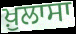
ਖ਼ੁਲਾਸਾ